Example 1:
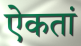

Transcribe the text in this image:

ऐकतां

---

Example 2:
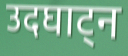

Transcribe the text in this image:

उदघाट्न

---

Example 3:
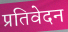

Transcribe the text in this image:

प्रतिवेदन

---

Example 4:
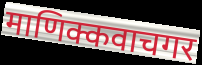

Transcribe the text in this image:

माणिक्कवाचगर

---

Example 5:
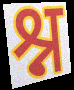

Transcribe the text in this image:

श्न